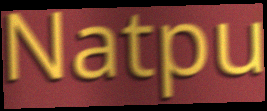
Natpu